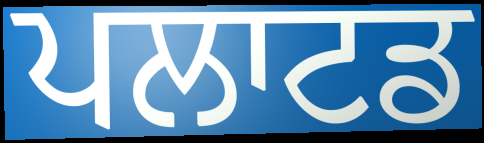
ਪਲਾਟਡ